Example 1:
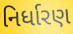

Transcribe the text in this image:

નિર્ધારણ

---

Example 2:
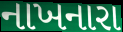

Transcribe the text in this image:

નાખનારા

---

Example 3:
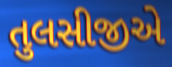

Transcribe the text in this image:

તુલસીજીએ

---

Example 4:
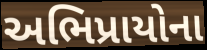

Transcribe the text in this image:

અભિપ્રાયોના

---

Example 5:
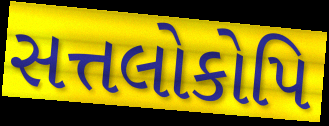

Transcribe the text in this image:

સત્તલોકોપિ